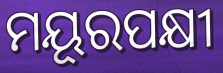
ମୟୂରପକ୍ଷୀ